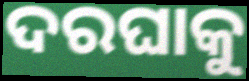
ଦରଘାକୁ